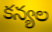
కన్యల